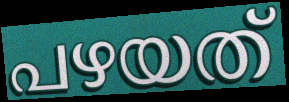
പഴയത്